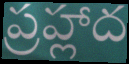
ప్రహ్లాద